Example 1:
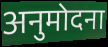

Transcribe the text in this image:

अनुमोदना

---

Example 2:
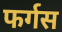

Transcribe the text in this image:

फर्गस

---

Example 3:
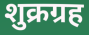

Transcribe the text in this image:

शुक्रग्रह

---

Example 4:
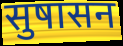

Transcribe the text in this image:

सुषासन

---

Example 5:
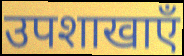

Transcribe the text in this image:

उपशाखाएँ